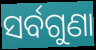
ସର୍ବଗୁଣା